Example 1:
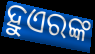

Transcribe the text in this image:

ହୁଏରଙ୍କ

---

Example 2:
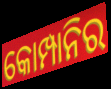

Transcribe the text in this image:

କୋମ୍ପାନିର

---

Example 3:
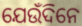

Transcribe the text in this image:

ଯେଉଁଦିନେ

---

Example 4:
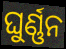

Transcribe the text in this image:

ଘୁର୍ଣ୍ଣନ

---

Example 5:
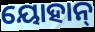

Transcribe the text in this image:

ୟୋହାନ୍